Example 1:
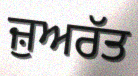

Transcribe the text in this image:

ਜ਼ੁਅਰੱਤ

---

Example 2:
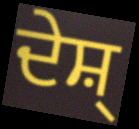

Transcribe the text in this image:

ਦੇਸ਼੍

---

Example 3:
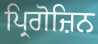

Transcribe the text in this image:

ਪ੍ਰਿਗੋਜ਼ਿਨ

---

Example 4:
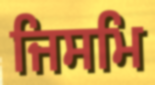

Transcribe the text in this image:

ਜਿਸਮਿ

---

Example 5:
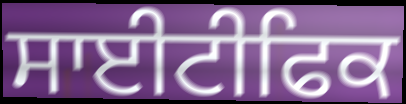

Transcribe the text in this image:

ਸਾਈਟੀਫਿਕ